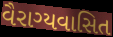
વૈરાગ્યવાસિત